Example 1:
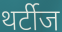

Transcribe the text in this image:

थर्टीज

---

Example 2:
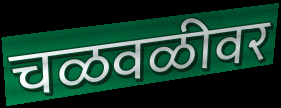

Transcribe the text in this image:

चळवळीवर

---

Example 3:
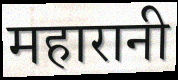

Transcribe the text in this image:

महारानी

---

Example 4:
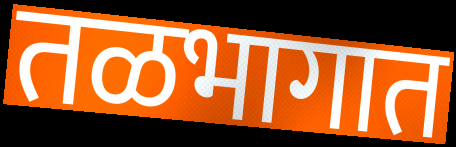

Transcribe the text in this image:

तळभागात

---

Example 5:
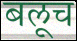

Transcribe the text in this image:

बलूच